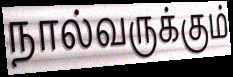
நால்வருக்கும்